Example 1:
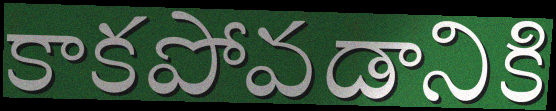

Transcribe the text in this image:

కాకపోవడానికి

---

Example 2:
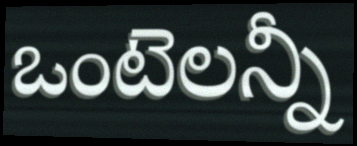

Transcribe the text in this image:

ఒంటెలన్నీ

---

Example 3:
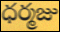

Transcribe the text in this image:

ధర్మజు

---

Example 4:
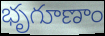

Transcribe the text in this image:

భృగూణాం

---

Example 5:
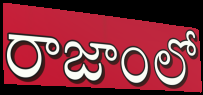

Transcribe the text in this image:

రాజాంలో